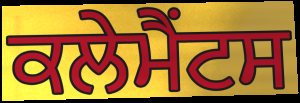
ਕਲੇਮੈਂਟਸ